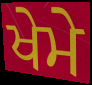
ਖੇਮੇ